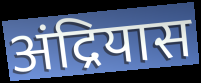
अंद्रियास